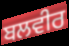
ਬਲਵੀਰ